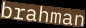
brahman